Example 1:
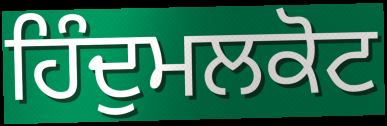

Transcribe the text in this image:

ਹਿੰਦੁਮਲਕੋਟ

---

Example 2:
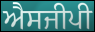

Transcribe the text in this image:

ਐਸਜੀਪੀ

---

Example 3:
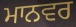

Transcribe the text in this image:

ਮਾਨਵਰ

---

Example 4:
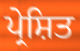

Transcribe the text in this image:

ਪ੍ਰੇਸ਼ਿਤ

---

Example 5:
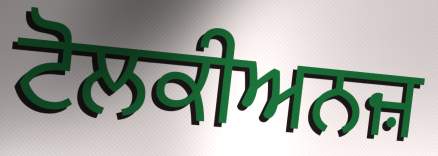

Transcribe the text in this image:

ਟੋਲਕੀਅਨਜ਼